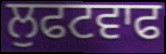
ਲੁਫਟਵਾਫ